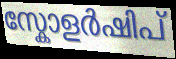
സ്കോളർഷിപ്